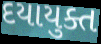
દયાયુક્ત